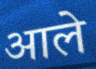
आले